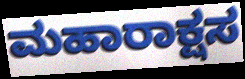
ಮಹಾರಾಕ್ಷಸ